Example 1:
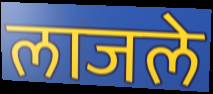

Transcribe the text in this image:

लाजले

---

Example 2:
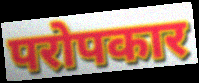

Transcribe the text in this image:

परोपकार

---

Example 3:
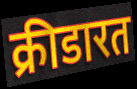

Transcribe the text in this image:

क्रीडारत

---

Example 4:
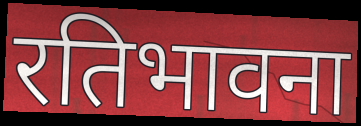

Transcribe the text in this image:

रतिभावना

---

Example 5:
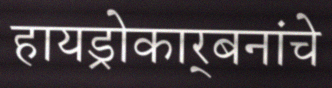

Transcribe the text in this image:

हायड्रोकार्बनांचे